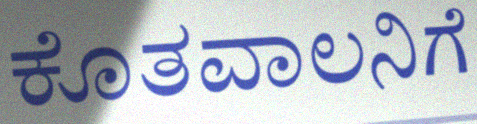
ಕೊತವಾಲನಿಗೆ